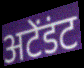
अटेंडंट